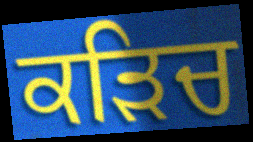
ਕੜਿਚ